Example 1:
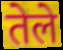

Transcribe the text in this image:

तेले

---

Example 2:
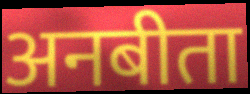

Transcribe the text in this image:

अनबीता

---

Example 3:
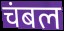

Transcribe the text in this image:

चंबल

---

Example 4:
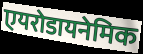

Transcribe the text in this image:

एयरोडायनेमिक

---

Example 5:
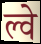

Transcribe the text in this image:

ल्वे